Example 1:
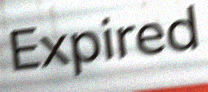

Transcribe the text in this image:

Expired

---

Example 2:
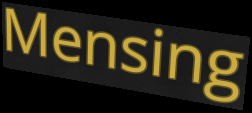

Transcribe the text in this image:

Mensing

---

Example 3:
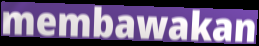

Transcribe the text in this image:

membawakan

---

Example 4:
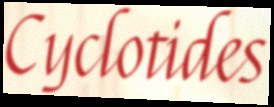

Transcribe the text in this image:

Cyclotides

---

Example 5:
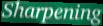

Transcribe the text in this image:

Sharpening